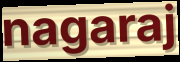
nagaraj